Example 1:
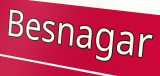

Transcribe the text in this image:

Besnagar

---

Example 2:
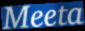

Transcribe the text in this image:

Meeta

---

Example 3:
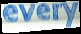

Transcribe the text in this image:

every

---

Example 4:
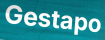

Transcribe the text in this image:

Gestapo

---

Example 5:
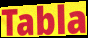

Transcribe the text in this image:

Tabla